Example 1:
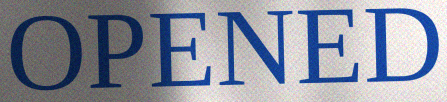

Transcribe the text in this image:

OPENED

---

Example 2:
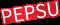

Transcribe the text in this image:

PEPSU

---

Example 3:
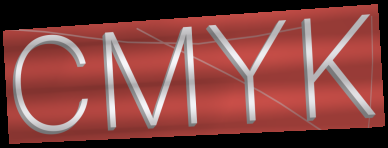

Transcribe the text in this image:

CMYK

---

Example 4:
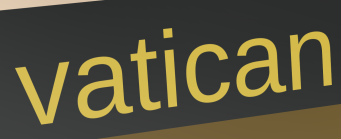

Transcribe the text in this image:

vatican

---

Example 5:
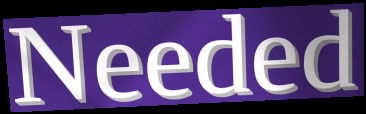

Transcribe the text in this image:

Needed